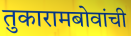
तुकारामबोवांची